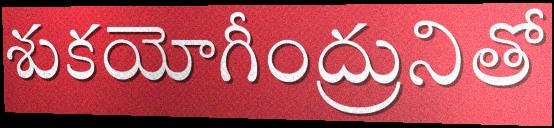
శుకయోగీంద్రునితో